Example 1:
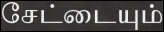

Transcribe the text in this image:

சேட்டையும்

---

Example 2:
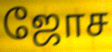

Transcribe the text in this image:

ஜோச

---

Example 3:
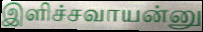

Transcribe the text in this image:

இளிச்சவாயன்னு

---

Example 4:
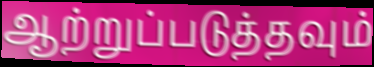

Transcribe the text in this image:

ஆற்றுப்படுத்தவும்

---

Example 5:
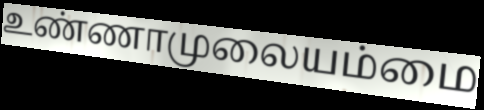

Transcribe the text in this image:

உண்ணாமுலையம்மை